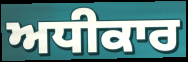
ਅਧੀਕਾਰ